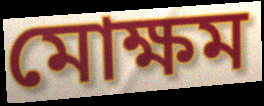
মোক্ষম